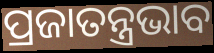
ପ୍ରଜାତନ୍ତ୍ରଭାବ